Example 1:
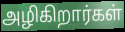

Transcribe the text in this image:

அழிகிறார்கள்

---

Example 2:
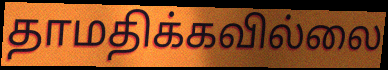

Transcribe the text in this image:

தாமதிக்கவில்லை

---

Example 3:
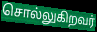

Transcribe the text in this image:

சொல்லுகிறவர்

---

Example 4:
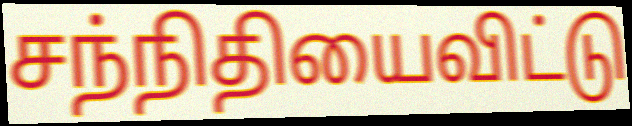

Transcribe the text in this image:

சந்நிதியைவிட்டு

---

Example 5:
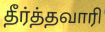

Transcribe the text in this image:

தீர்த்தவாரி